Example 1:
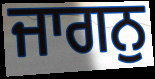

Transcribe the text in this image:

ਜਾਗਨੁ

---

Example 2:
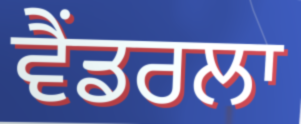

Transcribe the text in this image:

ਵੈਂਡਰਲਾ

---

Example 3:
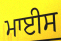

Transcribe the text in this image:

ਮਾਈਸ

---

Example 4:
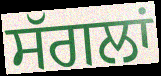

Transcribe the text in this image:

ਸੱਗਲਾਂ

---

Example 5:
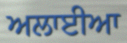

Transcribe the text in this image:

ਅਲਾਈਆ